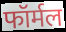
फॉर्मल